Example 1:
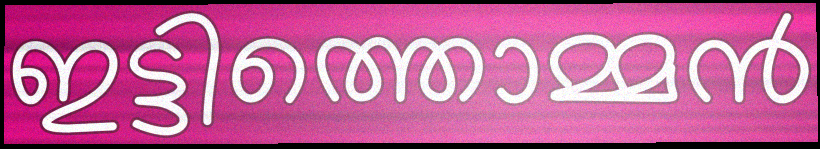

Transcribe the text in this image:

ഇട്ടിത്തൊമ്മൻ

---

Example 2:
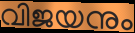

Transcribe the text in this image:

വിജയനും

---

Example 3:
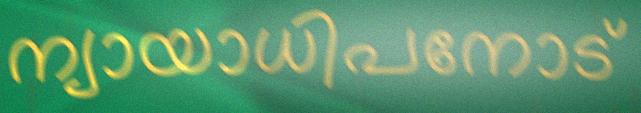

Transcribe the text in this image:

ന്യായാധിപനോട്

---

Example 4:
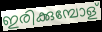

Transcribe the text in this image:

ഇരിക്കുമ്പോള്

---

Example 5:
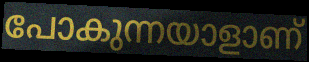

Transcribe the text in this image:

പോകുന്നയാളാണ്